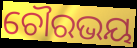
ଚୌରଭୟ